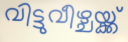
വിട്ടുവീഴ്ചയ്ക്ക്